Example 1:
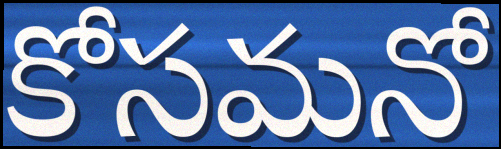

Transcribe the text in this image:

కోసమనో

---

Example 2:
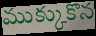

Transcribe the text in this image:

ముక్కుకొన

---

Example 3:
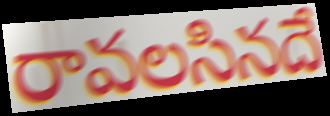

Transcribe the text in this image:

రావలసినదే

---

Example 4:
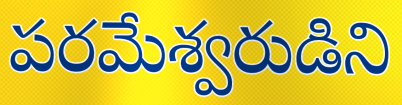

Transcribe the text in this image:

పరమేశ్వరుడిని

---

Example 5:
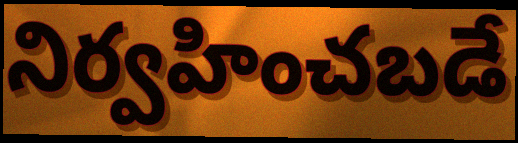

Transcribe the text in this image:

నిర్వహించబడే